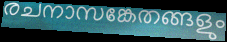
രചനാസങ്കേതങ്ങളും